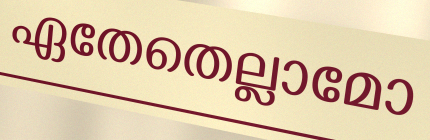
ഏതേതെല്ലാമോ